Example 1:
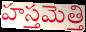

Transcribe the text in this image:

హస్తమెత్తి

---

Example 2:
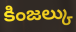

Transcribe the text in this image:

కింజల్కు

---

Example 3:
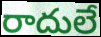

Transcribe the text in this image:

రాదులే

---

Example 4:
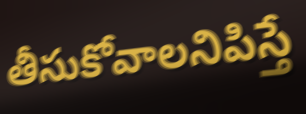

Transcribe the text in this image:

తీసుకోవాలనిపిస్తే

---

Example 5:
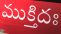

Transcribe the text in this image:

ముక్తిదః